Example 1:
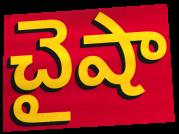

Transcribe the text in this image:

చైషా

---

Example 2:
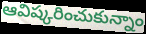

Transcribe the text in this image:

ఆవిష్కరించుకున్నాం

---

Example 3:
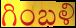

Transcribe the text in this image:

గింబళి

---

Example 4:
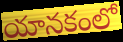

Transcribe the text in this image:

యానకంలో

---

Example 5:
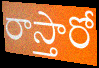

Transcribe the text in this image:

రాస్తారో